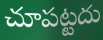
చూపట్టదు